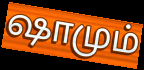
ஷாமும்